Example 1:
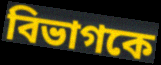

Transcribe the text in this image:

বিভাগকে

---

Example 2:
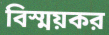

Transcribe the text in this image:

বিস্ময়কর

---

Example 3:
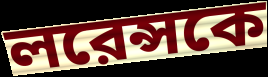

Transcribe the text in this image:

লরেন্সকে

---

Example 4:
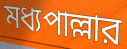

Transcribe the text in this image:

মধ্যপাল্লার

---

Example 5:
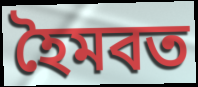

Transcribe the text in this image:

হৈমবত